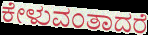
ಕೇಳುವಂತಾದರೆ